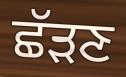
ਛੱੜਣ